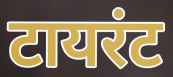
टायरंट